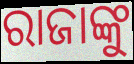
ରାଜାଙ୍କୁ